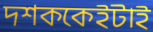
দশককেইটাই